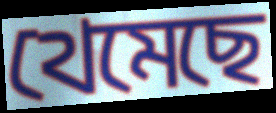
থেমেছে